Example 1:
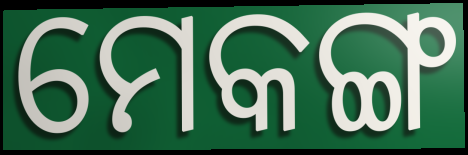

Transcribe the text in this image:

ମେକଙ୍ଗ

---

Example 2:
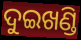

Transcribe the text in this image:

ଦୁଇଖଣ୍ଡି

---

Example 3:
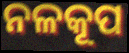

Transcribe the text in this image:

ନଳକୂପ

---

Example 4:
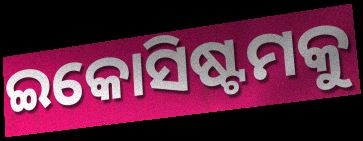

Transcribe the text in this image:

ଇକୋସିଷ୍ଟମକୁ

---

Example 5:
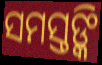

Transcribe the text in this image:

ସମସ୍ତଙ୍କି